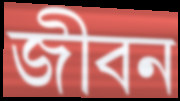
জীবন